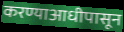
करण्याआधीपासून